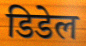
डिडेल